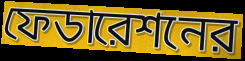
ফেডারেশনের